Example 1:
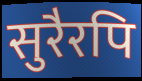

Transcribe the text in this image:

सुरैरपि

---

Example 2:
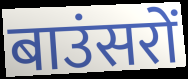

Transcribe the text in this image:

बाउंसरों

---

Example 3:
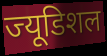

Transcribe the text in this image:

ज्यूडिशल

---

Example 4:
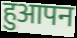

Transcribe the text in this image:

हुआपन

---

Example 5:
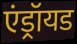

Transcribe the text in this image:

एंड्रॉयड